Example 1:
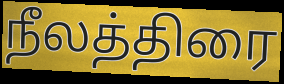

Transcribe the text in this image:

நீலத்திரை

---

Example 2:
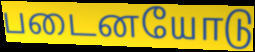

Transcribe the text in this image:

படைனயோடு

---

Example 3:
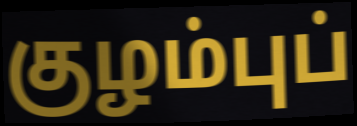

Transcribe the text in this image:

குழம்புப்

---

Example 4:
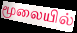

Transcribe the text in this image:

மூலையில்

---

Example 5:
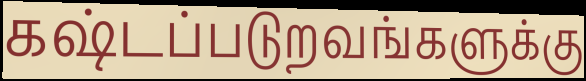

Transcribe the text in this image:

கஷ்டப்படுறவங்களுக்கு